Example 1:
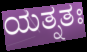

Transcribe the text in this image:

ಯತ್ನತಃ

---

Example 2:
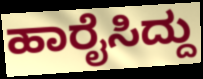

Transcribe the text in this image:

ಹಾರೈಸಿದ್ದು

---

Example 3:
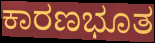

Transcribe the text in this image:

ಕಾರಣಭೂತ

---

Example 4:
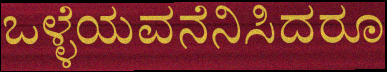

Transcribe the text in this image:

ಒಳ್ಳೆಯವನೆನಿಸಿದರೂ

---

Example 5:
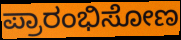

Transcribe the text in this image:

ಪ್ರಾರಂಭಿಸೋಣ